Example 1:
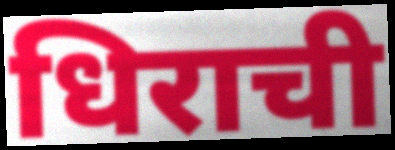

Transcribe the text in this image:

धिराची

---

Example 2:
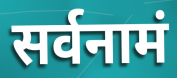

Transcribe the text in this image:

सर्वनामं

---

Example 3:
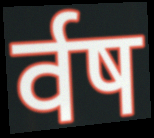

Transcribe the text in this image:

र्वष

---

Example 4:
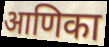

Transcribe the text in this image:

आणिका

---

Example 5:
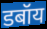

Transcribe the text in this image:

डबॉय